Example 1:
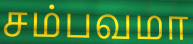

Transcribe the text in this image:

சம்பவமா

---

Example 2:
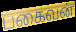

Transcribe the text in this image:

பகைவன்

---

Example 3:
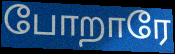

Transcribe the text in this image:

போறாரே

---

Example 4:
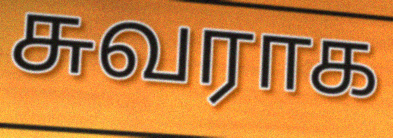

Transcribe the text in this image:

சுவராக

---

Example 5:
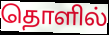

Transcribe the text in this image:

தொளில்